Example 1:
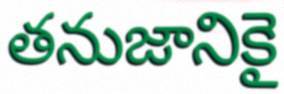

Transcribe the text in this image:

తనుజానికై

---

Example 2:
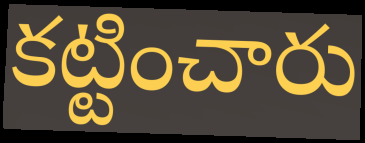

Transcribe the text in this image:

కట్టించారు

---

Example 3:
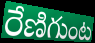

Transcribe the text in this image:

రేణిగుంట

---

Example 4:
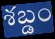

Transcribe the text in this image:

శబ్డం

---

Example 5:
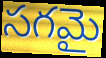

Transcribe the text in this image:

సగమై